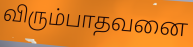
விரும்பாதவனை